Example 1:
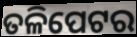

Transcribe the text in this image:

ତଳିପେଟର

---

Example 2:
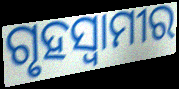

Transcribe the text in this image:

ଗୃହସ୍ୱାମୀର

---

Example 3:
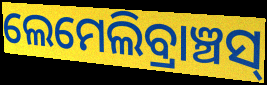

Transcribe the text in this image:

ଲେମେଲିବ୍ରାଞ୍ଚସ୍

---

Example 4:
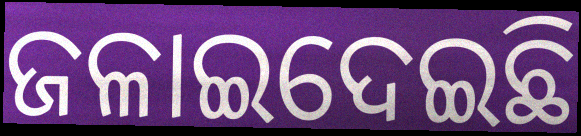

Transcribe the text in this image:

ଜଳାଇଦେଇଛି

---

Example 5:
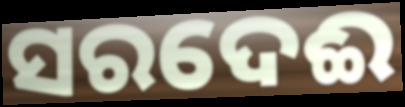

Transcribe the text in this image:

ସରଦେଈ